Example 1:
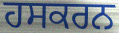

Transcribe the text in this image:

ਹਸਕਰਨ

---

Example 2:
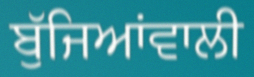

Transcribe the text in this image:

ਬੁੱਜਿਆਂਵਾਲੀ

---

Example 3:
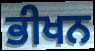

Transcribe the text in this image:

ਭੀਖਨ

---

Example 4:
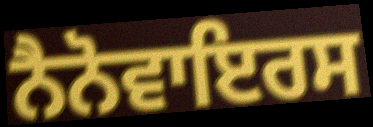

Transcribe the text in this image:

ਨੈਨੋਵਾਇਰਸ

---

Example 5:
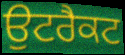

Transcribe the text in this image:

ਉਟਰੈਕਟ